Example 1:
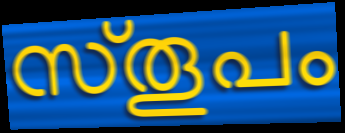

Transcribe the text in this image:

സ്തൂപം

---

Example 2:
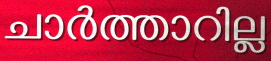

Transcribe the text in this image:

ചാർത്താറില്ല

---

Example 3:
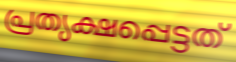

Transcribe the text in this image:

പ്രത്യക്ഷപ്പെട്ടത്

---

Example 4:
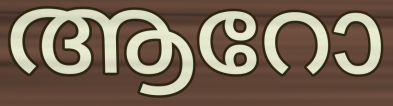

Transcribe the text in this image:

ആറോ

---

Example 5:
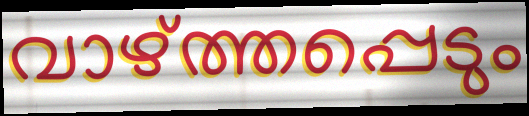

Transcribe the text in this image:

വാഴ്ത്തപ്പെടും